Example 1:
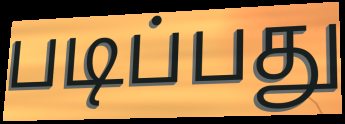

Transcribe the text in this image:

படிப்பது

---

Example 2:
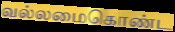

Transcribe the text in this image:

வல்லமைகொண்ட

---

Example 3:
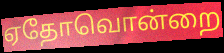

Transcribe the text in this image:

ஏதோவொன்றை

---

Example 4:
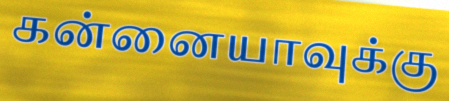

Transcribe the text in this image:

கன்னையாவுக்கு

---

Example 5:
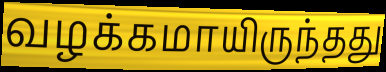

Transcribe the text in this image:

வழக்கமாயிருந்தது